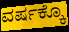
ವರ್ಷಕ್ಕೊ